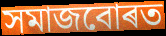
সমাজবোৰত